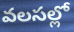
వలసల్లో